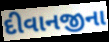
દીવાનજીના